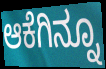
ಆಕೆಗಿನ್ನೂ